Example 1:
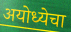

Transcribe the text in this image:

अयोध्येचा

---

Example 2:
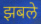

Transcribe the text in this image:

झबले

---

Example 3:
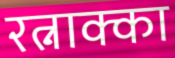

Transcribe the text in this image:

रत्नाक्का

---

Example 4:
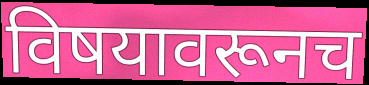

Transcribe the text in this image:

विषयावरूनच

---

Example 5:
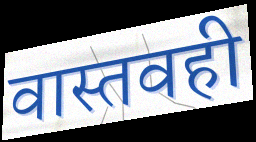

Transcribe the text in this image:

वास्तवही